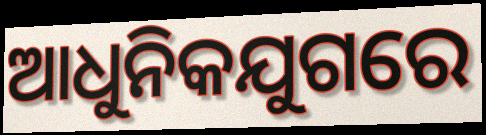
ଆଧୁନିକଯୁଗରେ